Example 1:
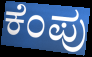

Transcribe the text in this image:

ಕೆಂಪು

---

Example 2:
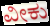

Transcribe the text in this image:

ವೀಕು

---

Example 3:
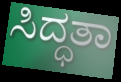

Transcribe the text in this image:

ಸಿದ್ಧತಾ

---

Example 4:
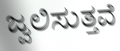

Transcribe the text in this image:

ಜ್ವಲಿಸುತ್ತವೆ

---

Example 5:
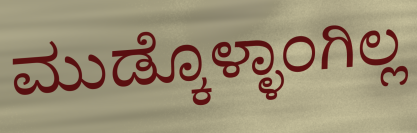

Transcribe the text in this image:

ಮುಡ್ಕೊಳ್ಳಾಂಗಿಲ್ಲ